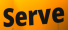
Serve